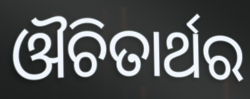
ଔଚିତାର୍ଥର